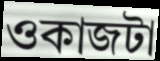
ওকাজটা